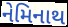
નેમિનાથ